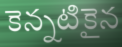
కెన్నటికైన